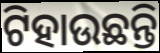
ଟିହାଉଛନ୍ତି